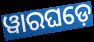
ୱାରଘଡ଼େ